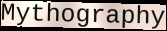
Mythography